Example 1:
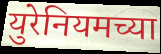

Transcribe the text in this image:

युरेनियमच्या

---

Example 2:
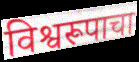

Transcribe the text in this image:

विश्वरूपाचा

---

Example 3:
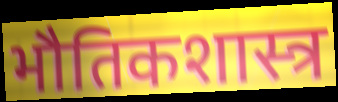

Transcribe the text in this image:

भौतिकशास्त्र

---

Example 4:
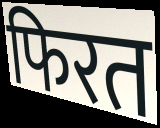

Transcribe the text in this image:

फिरत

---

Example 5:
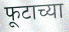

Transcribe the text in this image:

फूटाच्या